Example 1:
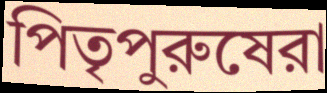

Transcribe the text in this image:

পিতৃপুরুষেরা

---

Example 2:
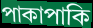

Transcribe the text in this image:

পাকাপাকি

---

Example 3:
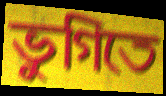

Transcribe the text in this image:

ভুগিতে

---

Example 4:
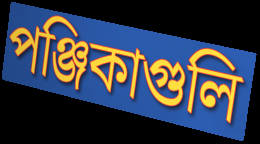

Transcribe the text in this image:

পঞ্জিকাগুলি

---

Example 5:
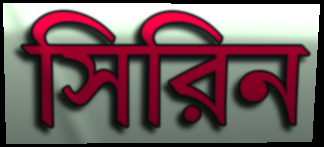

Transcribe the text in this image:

সিরিন